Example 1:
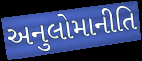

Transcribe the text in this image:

અનુલોમાનીતિ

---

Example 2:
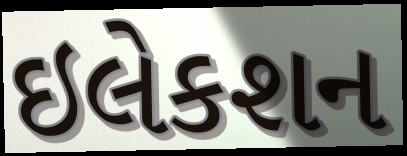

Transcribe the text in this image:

ઇલેકશન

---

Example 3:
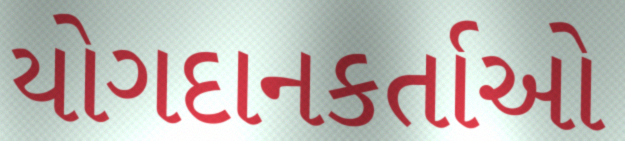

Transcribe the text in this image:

યોગદાનકર્તાઓ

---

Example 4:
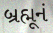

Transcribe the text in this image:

બ્રહ્મૂનં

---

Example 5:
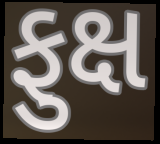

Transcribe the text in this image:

ફુક્ષ